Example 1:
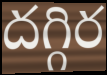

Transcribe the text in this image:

దగ్గిర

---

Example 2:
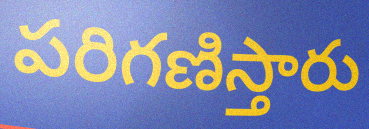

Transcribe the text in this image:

పరిగణిస్తారు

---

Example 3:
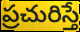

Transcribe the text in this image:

ప్రచురిస్తే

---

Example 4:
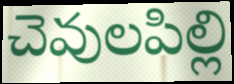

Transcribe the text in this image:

చెవులపిల్లి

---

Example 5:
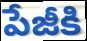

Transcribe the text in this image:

పేజీకి